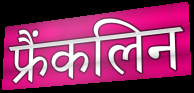
फ्रैंकलिन